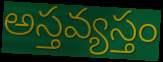
అస్తవ్యస్తం